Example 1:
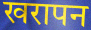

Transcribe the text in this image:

खरापन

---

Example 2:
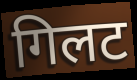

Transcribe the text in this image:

गिलट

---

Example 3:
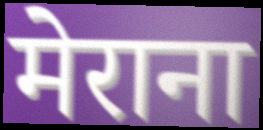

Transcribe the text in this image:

मेराना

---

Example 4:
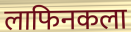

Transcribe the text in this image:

लाफिनकला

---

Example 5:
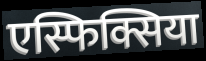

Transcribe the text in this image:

एस्फिक्सिया